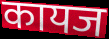
कायज